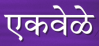
एकवेळे